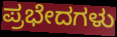
ಪ್ರಭೇದಗಳು